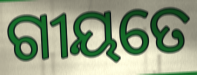
ଗୀୟତେ